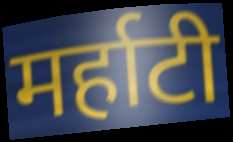
मर्हाटी